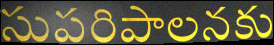
సుపరిపాలనకు